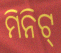
ମିନିଟ୍